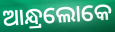
ଆନ୍ଧ୍ରଲୋକେ